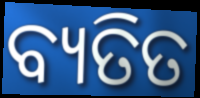
ବ୍ୟତିତ